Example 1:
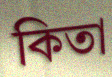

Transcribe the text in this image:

কিতা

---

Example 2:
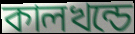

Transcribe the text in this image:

কালখন্ডে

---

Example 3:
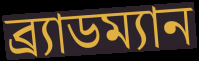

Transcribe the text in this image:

ব্র্যাডম্যান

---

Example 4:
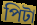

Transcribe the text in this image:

পিটা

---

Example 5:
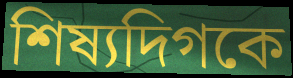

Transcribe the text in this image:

শিষ্যদিগকে